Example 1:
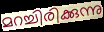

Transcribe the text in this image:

മറച്ചിരിക്കുന്നു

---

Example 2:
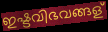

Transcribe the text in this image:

ഇഷ്ടവിഭവങ്ങള്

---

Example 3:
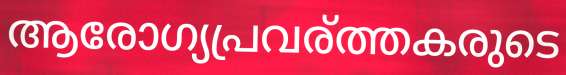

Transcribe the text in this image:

ആരോഗ്യപ്രവര്ത്തകരുടെ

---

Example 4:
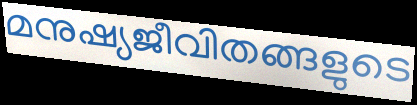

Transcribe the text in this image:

മനുഷ്യജീവിതങ്ങളുടെ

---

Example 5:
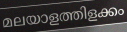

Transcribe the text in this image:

മലയാളത്തിളക്കം